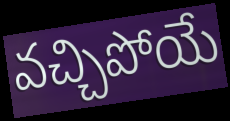
వచ్చిపోయే